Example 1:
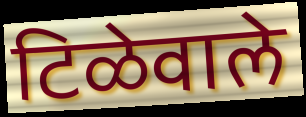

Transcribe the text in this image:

टिळेवाले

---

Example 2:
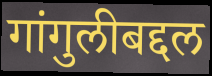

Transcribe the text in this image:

गांगुलीबद्दल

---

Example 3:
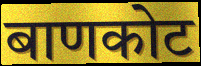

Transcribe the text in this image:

बाणकोट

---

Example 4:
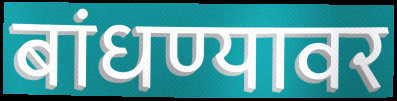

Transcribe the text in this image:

बांधण्यावर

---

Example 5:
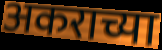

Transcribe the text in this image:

अकराच्या